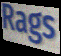
Rags